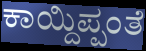
ಕಾಯ್ದಿಪ್ಪಂತೆ